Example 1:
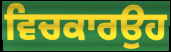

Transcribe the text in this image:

ਵਿਚਕਾਰਉਹ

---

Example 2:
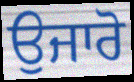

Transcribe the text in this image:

ਉਜਾਰੋ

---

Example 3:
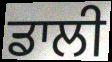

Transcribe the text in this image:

ਡਾਲੀ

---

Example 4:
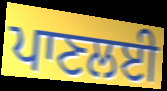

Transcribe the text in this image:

ਪਾਣਲਈ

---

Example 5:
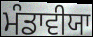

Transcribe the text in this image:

ਮੰਡਾਵੀਯਾ